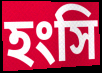
হংসি